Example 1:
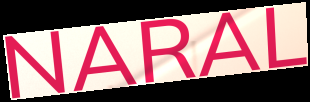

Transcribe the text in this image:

NARAL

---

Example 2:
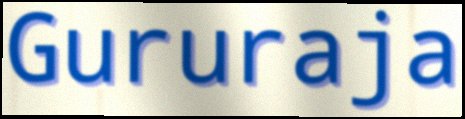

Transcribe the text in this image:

Gururaja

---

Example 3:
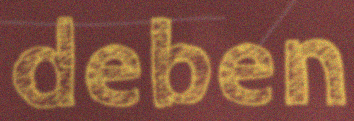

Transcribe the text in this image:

deben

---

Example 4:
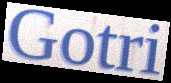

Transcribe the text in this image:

Gotri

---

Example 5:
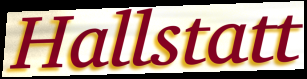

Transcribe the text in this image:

Hallstatt